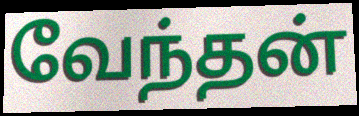
வேந்தன்